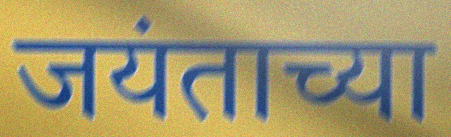
जयंताच्या